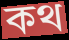
কথ